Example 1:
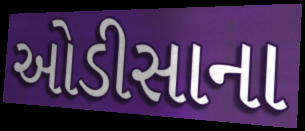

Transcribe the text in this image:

ઓડીસાના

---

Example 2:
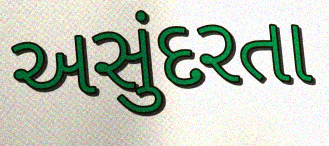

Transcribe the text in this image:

અસુંદરતા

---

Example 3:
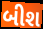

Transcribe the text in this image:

બીશ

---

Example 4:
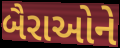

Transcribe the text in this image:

બૈરાઓને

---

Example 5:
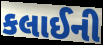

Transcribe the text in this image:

કલાઈની